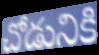
చోడునికి